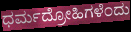
ಧರ್ಮದ್ರೋಹಿಗಳೆಂದು